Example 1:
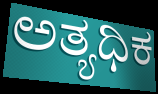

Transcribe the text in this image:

ಅತ್ಯಧಿಕ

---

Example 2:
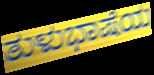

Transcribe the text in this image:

ತುಳುಭಾಷೆಯ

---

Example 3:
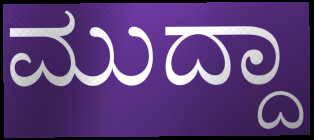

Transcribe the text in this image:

ಮುದ್ದಾ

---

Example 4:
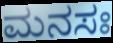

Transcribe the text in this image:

ಮನಸಃ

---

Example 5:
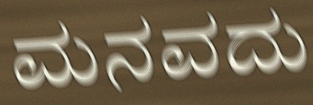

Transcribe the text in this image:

ಮನವದು